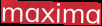
maxima